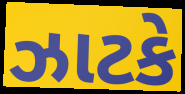
ઝાટકે